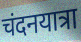
चंदनयात्रा